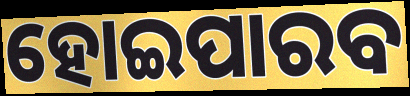
ହୋଇପାରବ